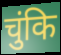
चुंकि